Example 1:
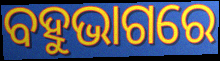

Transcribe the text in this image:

ବହୁଭାଗରେ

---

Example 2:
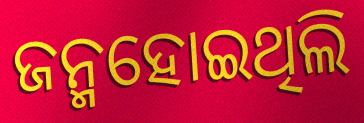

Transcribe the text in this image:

ଜନ୍ମହୋଇଥିଲି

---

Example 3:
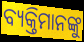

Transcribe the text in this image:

ବ୍ଯକ୍ତିମାନଙ୍କୁ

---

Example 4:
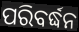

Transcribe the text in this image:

ପରିବର୍ଦ୍ଧନ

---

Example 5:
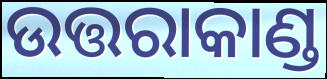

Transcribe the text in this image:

ଉତ୍ତରାକାଣ୍ଡ